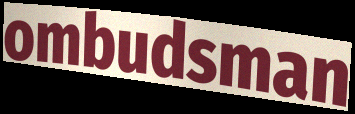
ombudsman